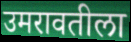
उमरावतीला